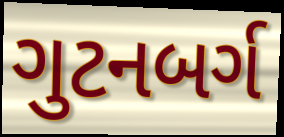
ગુટનબર્ગ